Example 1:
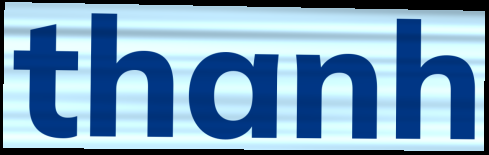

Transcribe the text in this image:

thanh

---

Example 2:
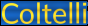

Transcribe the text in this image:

Coltelli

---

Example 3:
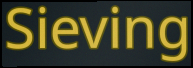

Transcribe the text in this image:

Sieving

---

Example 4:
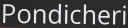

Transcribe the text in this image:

Pondicheri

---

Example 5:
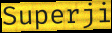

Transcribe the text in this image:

Superji